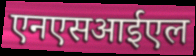
एनएसआईएल